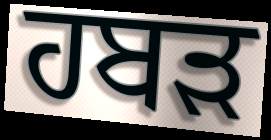
ਹਬੜ